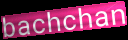
bachchan